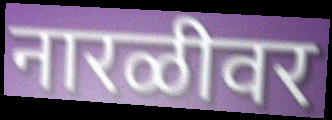
नारळीवर